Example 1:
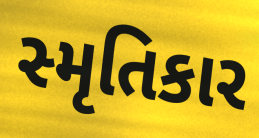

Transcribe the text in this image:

સ્મૃતિકાર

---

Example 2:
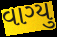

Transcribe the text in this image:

વાગ્યુ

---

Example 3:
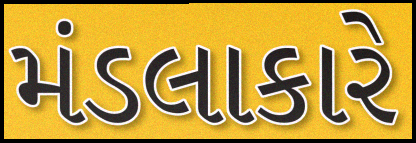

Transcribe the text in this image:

મંડલાકારે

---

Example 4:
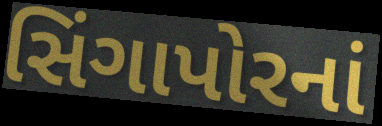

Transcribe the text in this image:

સિંગાપોરનાં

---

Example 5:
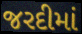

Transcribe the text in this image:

જરદીમાં